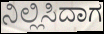
ನಿಲ್ಲಿಸಿದಾಗ